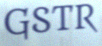
GSTR